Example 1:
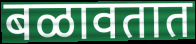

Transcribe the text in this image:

बळावतात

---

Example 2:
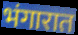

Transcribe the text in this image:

भंगारात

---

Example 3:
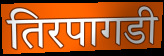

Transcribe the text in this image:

तिरपागडी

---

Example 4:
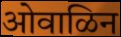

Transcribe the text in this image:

ओवाळिन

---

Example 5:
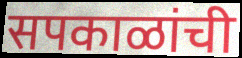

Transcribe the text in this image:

सपकाळांची